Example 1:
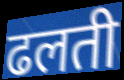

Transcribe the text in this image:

ढलती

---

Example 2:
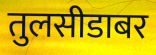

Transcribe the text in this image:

तुलसीडाबर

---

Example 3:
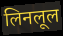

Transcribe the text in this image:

लिनलूल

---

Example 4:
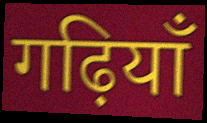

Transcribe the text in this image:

गढ़ियाँ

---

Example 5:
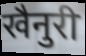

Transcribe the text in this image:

खैनुरी